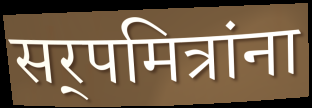
सर्पमित्रांना